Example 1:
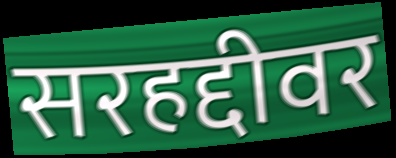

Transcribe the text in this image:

सरहद्दीवर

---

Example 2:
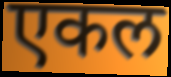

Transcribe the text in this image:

एकल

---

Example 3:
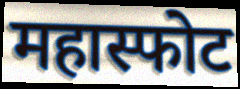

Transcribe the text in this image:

महास्फोट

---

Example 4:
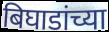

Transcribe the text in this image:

बिघाडांच्या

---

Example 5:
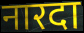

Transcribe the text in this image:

नारदा